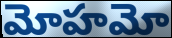
మోహమో